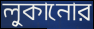
লুকানোর